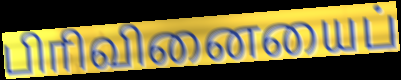
பிரிவினையைப்